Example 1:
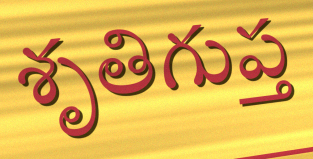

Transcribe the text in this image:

శృతిగుప్త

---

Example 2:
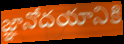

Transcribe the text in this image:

జ్ఞానోదయానికి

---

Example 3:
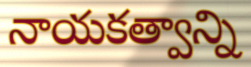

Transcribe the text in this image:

నాయకత్వాన్ని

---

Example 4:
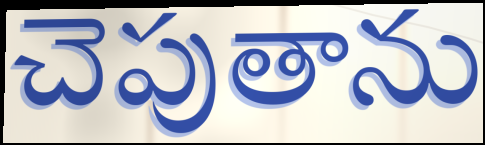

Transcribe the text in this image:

చెపుతాను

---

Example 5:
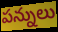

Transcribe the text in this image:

పన్నులు